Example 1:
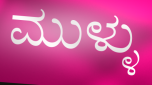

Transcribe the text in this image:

ಮುಳ್ಳು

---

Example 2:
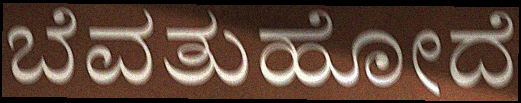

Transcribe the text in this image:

ಬೆವತುಹೋದೆ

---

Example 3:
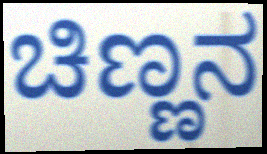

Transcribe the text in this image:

ಚಿಣ್ಣನ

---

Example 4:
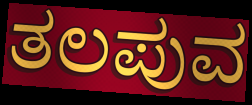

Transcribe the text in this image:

ತಲಪುವ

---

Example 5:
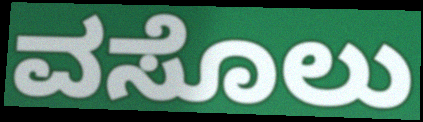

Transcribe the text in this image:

ವಸೊಲು